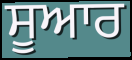
ਸੂਆਰ